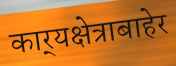
कार्यक्षेत्राबाहेर